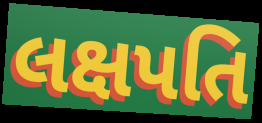
લક્ષપતિ